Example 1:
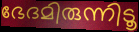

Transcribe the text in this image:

ഭേദമിരുന്നിടൂ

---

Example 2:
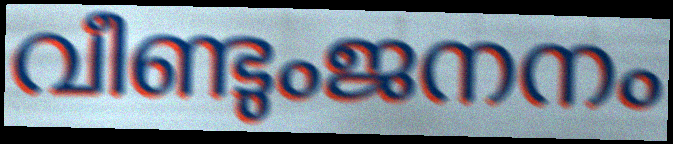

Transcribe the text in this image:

വീണ്ടുംജനനം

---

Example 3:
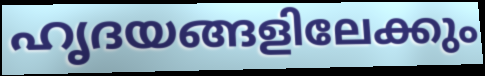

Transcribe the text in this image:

ഹൃദയങ്ങളിലേക്കും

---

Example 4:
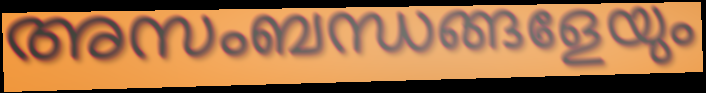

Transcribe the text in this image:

അസംബന്ധങ്ങളേയും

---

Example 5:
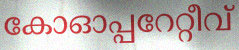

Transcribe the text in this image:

കോഓപ്പറേറ്റീവ്